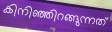
കിനിഞ്ഞിറങ്ങുന്നത്